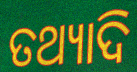
ତଥ୍ୟାଦି